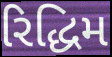
રિદ્ધિમ